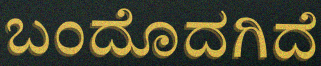
ಬಂದೊದಗಿದೆ